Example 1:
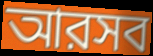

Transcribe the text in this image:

আরসব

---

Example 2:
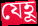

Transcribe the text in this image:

যেহূ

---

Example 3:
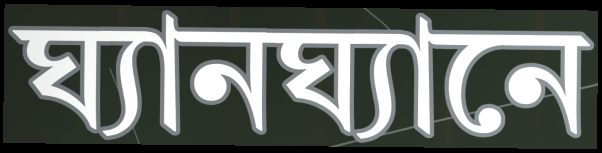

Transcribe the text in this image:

ঘ্যানঘ্যানে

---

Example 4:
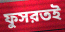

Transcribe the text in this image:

ফুসরতই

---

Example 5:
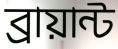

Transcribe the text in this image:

ব্রায়ান্ট